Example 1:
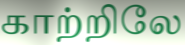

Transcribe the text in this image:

காற்றிலே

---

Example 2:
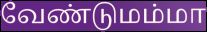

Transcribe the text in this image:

வேண்டுமம்மா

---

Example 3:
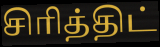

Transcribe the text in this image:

சிரித்திட்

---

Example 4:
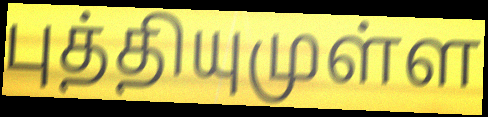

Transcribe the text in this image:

புத்தியுமுள்ள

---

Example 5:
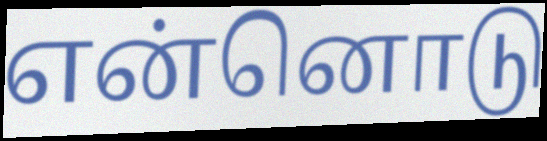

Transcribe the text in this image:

என்னொடு